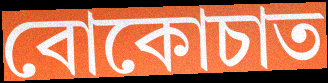
বোকোচাত